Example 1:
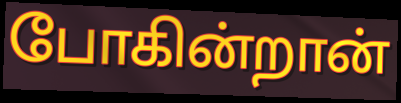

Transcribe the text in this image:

போகின்றான்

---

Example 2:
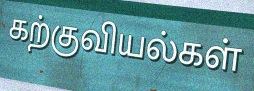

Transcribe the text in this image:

கற்குவியல்கள்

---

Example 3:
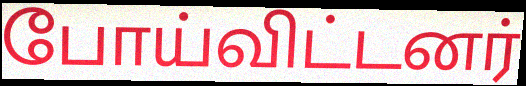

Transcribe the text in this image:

போய்விட்டனர்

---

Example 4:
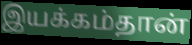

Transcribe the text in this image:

இயக்கம்தான்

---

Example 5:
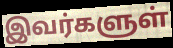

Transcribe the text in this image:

இவர்களுள்